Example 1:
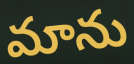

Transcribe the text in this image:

మాను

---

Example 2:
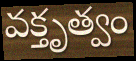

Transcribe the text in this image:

వక్తృత్వం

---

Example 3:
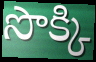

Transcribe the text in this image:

సొక్కి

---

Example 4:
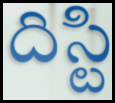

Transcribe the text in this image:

దిస్టి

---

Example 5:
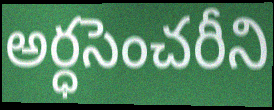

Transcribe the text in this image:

అర్ధసెంచరీని